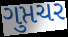
ગુપ્તચર